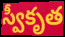
స్వీకృత